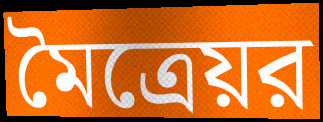
মৈত্রেয়র